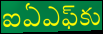
ఐఏఎఫ్‌కు